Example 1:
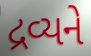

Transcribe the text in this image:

દ્રવ્યને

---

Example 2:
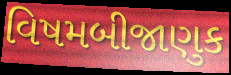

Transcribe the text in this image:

વિષમબીજાણુક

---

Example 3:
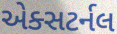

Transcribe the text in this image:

એક્સટર્નલ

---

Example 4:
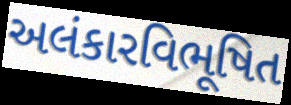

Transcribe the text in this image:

અલંકારવિભૂષિત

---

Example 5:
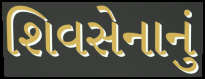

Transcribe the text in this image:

શિવસેનાનું